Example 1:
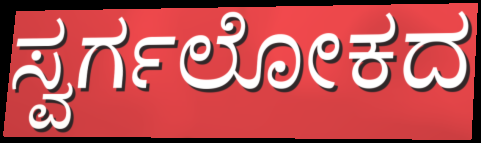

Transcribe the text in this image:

ಸ್ವರ್ಗಲೋಕದ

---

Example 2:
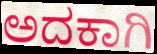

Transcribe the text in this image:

ಅದಕಾಗಿ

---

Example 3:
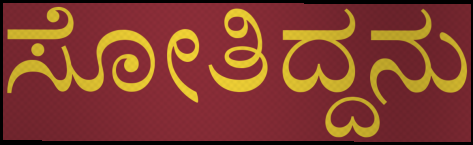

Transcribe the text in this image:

ಸೋತಿದ್ದನು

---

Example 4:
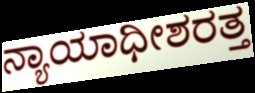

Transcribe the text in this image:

ನ್ಯಾಯಾಧೀಶರತ್ತ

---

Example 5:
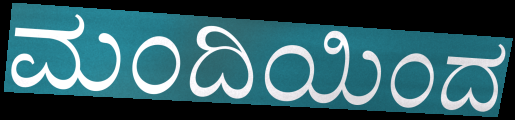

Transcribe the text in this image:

ಮಂದಿಯಿಂದ